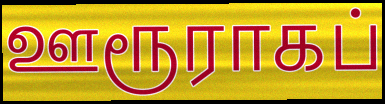
ஊரூராகப்